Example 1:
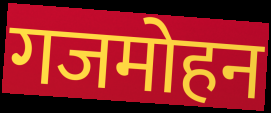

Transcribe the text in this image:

गजमोहन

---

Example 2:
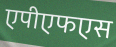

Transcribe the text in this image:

एपीएफएस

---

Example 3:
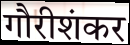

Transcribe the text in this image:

गौरीशंकर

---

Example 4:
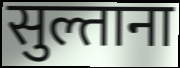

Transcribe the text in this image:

सुल्ताना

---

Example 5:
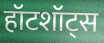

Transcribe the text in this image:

हॉटशॉट्स